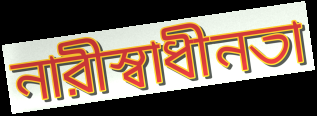
নারীস্বাধীনতা